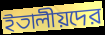
ইতালীয়দের